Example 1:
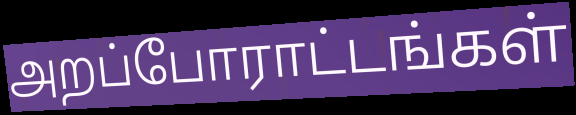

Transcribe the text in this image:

அறப்போராட்டங்கள்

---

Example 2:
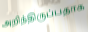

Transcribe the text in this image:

அறிந்திருப்பதாக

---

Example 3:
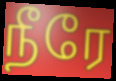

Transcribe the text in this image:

நீரே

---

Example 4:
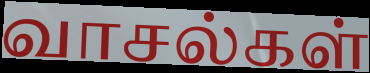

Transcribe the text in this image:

வாசல்கள்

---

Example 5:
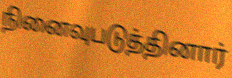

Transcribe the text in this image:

நினைவுபடுத்தினார்